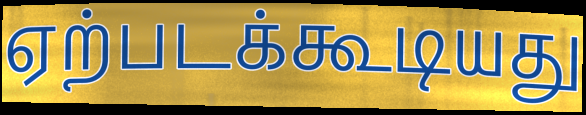
ஏற்படக்கூடியது